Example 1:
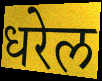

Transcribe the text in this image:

धरेल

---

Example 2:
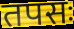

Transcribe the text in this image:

तपसः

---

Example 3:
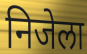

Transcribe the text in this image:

निजेला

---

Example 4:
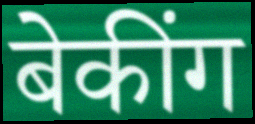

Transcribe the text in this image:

बेकींग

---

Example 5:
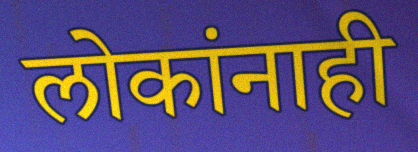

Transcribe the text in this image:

लोकांनाही